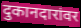
दुकानदारांवर